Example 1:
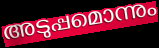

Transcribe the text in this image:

അടുപ്പമൊന്നും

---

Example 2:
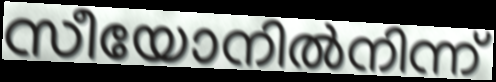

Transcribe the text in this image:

സീയോനിൽനിന്ന്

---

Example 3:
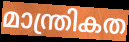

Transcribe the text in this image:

മാന്ത്രികത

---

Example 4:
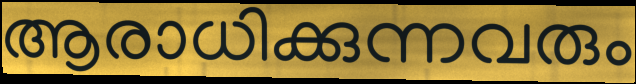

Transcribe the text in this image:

ആരാധിക്കുന്നവരും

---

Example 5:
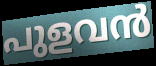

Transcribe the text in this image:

പുളവൻ